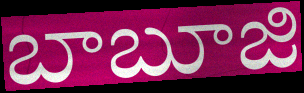
బాబూజి